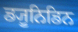
ਡ੍ਯੂਨਿਡਿਨ